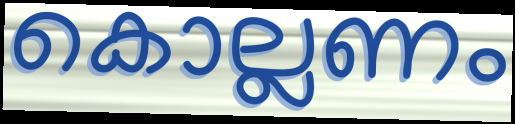
കൊല്ലണം